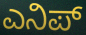
ಎನಿಪ್